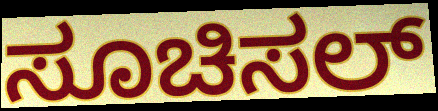
ಸೂಚಿಸಲ್